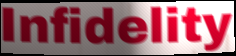
Infidelity